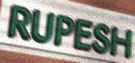
RUPESH